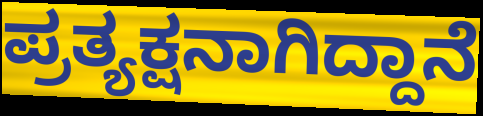
ಪ್ರತ್ಯಕ್ಷನಾಗಿದ್ದಾನೆ